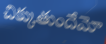
చిక్కుతుందేమో